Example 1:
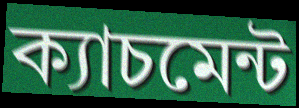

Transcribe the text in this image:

ক্যাচমেন্ট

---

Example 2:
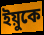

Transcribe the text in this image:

ইয়ুকে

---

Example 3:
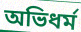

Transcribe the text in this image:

অভিধর্ম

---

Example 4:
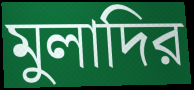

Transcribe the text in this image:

মুলাদির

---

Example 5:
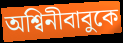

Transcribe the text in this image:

অশ্বিনীবাবুকে